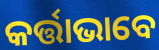
କର୍ତ୍ତାଭାବେ